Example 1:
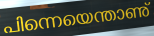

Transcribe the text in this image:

പിന്നെയെന്താണു്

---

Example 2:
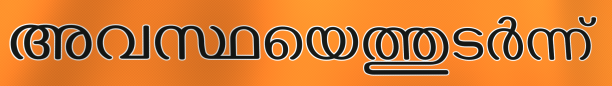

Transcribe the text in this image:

അവസ്ഥയെത്തുടർന്ന്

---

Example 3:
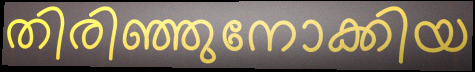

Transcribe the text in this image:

തിരിഞ്ഞുനോക്കിയ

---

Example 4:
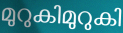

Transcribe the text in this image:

മുറുകിമുറുകി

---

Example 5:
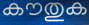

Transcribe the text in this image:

കൗതുക